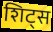
शिट्स